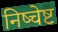
निष्चेष्ट